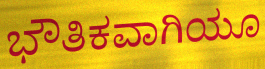
ಭೌತಿಕವಾಗಿಯೂ